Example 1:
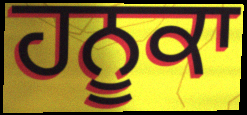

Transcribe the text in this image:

ਹਨੂਕਾ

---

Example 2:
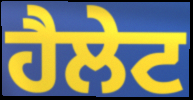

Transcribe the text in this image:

ਹੈਲੇਟ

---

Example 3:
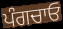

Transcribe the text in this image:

ਪੰਗਚਾਓ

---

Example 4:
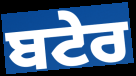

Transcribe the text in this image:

ਬਟੇਰ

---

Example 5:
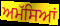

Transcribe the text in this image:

ਅਮੱਸਿਆਂ